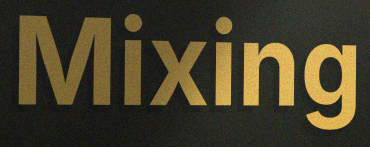
Mixing